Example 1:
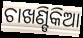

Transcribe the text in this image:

ଚାଖଣ୍ଡିକିଆ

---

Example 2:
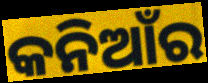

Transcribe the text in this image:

କନିଆଁର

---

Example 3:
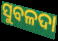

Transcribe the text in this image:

ସୁବଳଦା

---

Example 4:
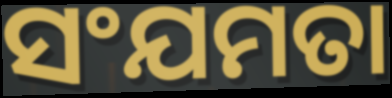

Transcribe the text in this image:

ସଂଯମତା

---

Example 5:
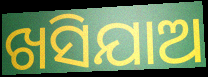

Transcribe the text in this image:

ଖସିଯାଅ